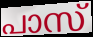
പാസ്